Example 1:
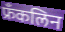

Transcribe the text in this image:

फ्रॅंकलिन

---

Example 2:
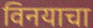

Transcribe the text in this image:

विनयाचा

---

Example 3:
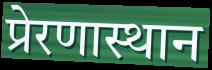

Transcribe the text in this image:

प्रेरणास्थान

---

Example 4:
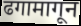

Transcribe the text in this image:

ढगामागून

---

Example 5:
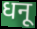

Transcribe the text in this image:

धनू